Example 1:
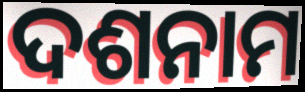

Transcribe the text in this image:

ଦଶନାମ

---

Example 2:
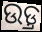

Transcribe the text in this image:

ଉଡ଼୍ର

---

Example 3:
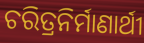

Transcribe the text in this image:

ଚରିତ୍ରନିର୍ମାଣାର୍ଥୀ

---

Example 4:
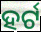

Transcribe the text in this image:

ହର୍ଟ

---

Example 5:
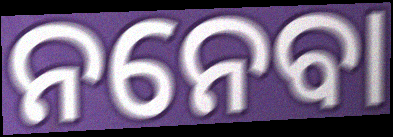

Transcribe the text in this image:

ନନେବା